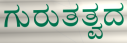
ಗುರುತತ್ವದ